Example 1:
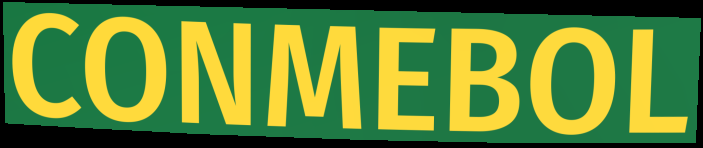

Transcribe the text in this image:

CONMEBOL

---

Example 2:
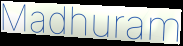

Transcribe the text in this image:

Madhuram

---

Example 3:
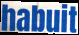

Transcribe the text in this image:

habuit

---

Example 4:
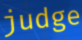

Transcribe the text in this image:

judge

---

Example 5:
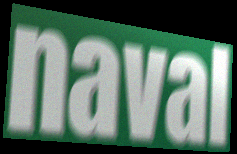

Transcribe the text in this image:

naval